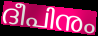
ദീപിനും